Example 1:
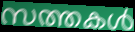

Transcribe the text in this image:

സത്തകൾ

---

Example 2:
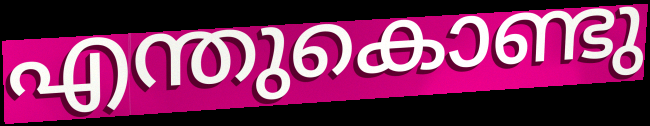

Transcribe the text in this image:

എന്തുകൊണ്ടു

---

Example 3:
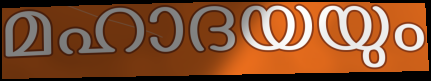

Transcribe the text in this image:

മഹാദയയും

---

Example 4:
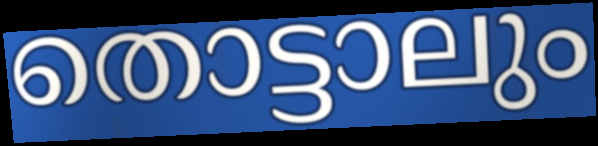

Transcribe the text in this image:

തൊട്ടാലും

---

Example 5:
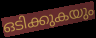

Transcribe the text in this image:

ഒടിക്കുകയും